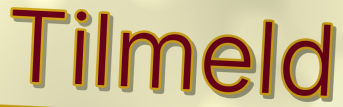
Tilmeld